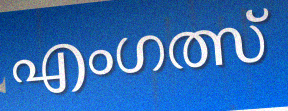
എംഗത്സ്